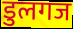
डुलगज